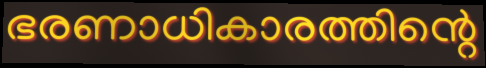
ഭരണാധികാരത്തിന്റെ